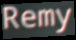
Remy